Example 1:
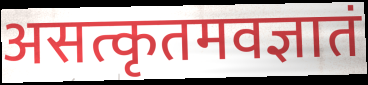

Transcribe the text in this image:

असत्कृतमवज्ञातं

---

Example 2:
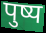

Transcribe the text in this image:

पुष्य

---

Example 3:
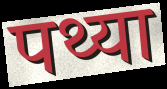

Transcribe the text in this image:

पथ्या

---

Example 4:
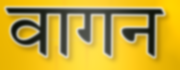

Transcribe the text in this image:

वागन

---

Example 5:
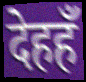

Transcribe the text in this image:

देहहँ